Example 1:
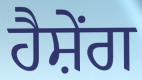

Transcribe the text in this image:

ਹੈਸ਼ੇਂਗ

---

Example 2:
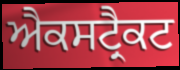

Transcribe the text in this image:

ਐਕਸਟ੍ਰੈਕਟ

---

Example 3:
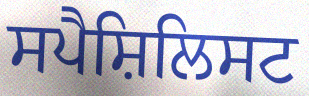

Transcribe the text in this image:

ਸਪੈਸ਼ਿਲਿਸਟ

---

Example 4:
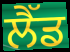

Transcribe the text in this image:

ਲੈੱਡ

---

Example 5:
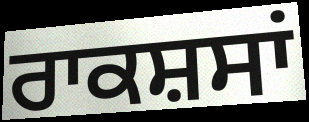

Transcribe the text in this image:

ਰਾਕਸ਼ਸਾਂ